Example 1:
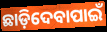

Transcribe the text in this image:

ଛାଡ଼ିଦେବାପାଇଁ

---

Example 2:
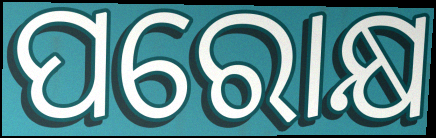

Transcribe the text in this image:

ପରୋକ୍ଷ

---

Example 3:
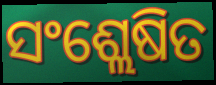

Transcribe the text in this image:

ସଂଶ୍ଲେଷିତ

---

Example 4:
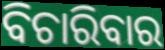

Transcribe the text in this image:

ବିଚାରିବାର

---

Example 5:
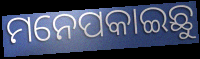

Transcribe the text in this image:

ମନେପକାଇଛୁ